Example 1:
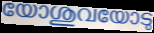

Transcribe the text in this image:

യോശുവയോടു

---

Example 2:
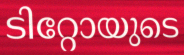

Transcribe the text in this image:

ടിറ്റോയുടെ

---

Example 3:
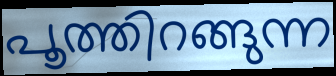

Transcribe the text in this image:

പൂത്തിറങ്ങുന്ന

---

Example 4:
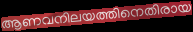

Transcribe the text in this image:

ആണവനിലയത്തിനെതിരായ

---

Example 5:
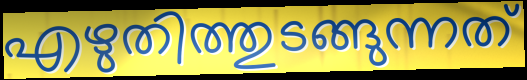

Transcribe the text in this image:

എഴുതിത്തുടങ്ങുന്നത്